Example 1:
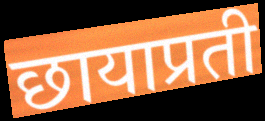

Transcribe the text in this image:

छायाप्रती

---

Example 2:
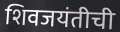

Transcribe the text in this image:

शिवजयंतीची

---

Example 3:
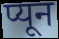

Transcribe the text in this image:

प्यून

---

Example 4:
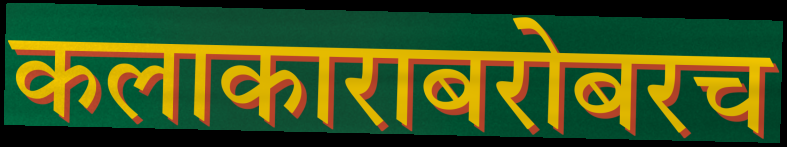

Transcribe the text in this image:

कलाकाराबरोबरच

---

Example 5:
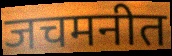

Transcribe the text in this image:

जचमनीत